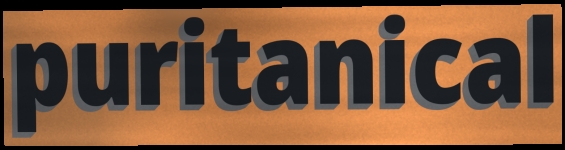
puritanical